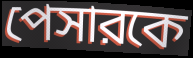
পেসারকে